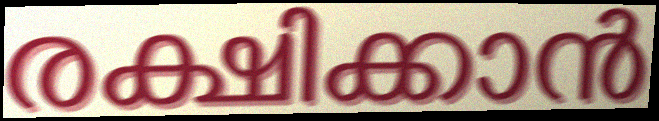
രക്ഷിക്കാൻ